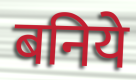
बनिये